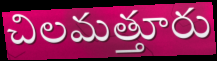
చిలమత్తూరు